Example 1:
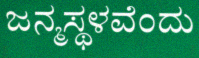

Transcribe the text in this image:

ಜನ್ಮಸ್ಥಳವೆಂದು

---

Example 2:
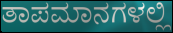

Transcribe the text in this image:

ತಾಪಮಾನಗಳಲ್ಲಿ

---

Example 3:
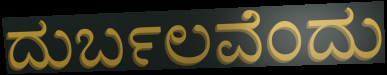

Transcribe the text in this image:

ದುರ್ಬಲವೆಂದು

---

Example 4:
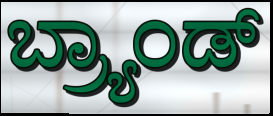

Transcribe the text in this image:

ಬ್ರ್ಯಾಂಡ್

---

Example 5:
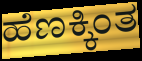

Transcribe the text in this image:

ಹೆಣಕ್ಕಿಂತ